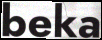
beka